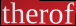
therof